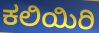
ಕಲಿಯಿರಿ